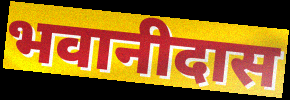
भवानीदास